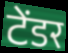
टेंडर